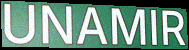
UNAMIR